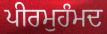
ਪੀਰਮੁਹੰਮਦ